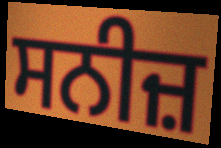
ਸਨੀਜ਼